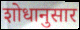
शोधानुसार